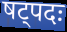
षट्पदः